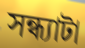
সন্ধ্যাটা